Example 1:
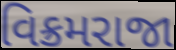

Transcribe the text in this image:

વિક્રમરાજા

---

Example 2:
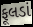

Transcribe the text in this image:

ફૂલડાં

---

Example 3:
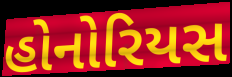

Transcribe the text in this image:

હોનોરિયસ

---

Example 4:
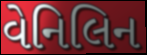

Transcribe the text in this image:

વેનિલિન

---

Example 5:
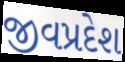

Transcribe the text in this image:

જીવપ્રદેશ